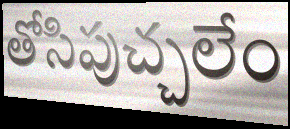
తోసిపుచ్చలేం